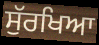
ਸੁੱਰਖਿਆ